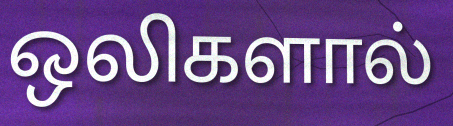
ஒலிகளால்